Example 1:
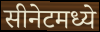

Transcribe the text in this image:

सीनेटमध्ये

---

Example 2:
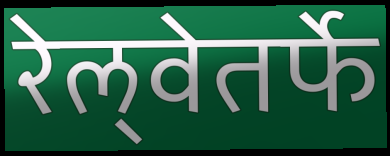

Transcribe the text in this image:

रेल्वेतर्फे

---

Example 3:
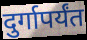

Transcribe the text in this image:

दुर्गापर्यंत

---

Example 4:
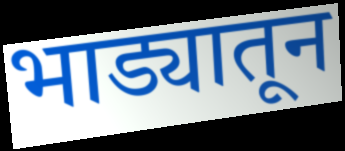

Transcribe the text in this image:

भाड्यातून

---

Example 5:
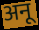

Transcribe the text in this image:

अनू